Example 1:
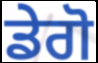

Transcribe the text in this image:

ਡੇਗੋ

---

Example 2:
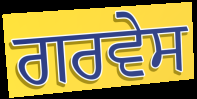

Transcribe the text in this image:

ਗਰਵੇਸ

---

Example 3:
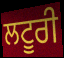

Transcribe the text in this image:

ਲਟੂਰੀ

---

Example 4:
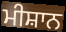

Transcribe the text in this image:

ਮੀਸ਼ਾਨ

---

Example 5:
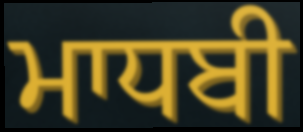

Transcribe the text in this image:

ਮਾਧਬੀ